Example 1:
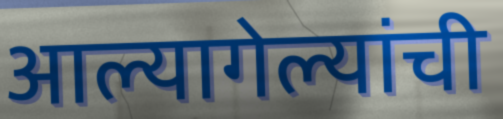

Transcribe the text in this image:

आल्यागेल्यांची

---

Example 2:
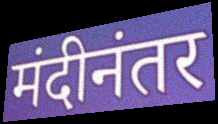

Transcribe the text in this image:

मंदीनंतर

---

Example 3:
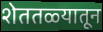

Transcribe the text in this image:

शेततळ्यातून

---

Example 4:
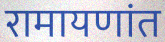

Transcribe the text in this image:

रामायणांत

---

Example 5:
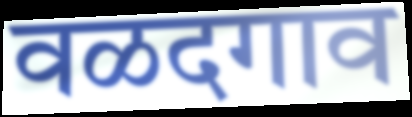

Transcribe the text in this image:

वळदगाव